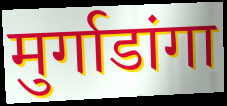
मुर्गाडांगा